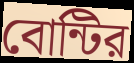
বোন্টির